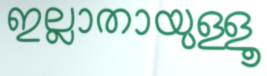
ഇല്ലാതായുള്ളൂ